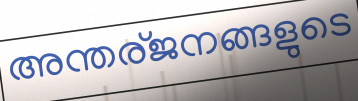
അന്തര്ജനങ്ങളുടെ